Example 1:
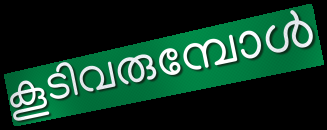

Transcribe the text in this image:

കൂടിവരുമ്പോൾ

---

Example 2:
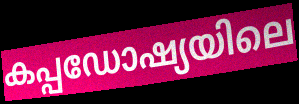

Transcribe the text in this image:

കപ്പഡോഷ്യയിലെ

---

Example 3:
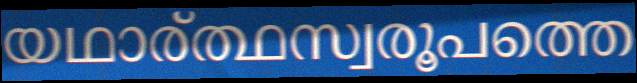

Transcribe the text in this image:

യഥാര്ത്ഥസ്വരൂപത്തെ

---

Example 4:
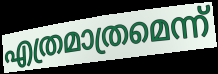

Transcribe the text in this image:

എത്രമാത്രമെന്ന്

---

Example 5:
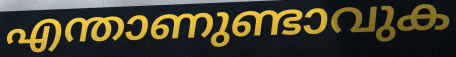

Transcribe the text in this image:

എന്താണുണ്ടാവുക